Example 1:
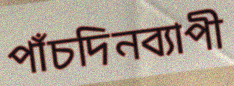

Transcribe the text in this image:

পাঁচদিনব্যাপী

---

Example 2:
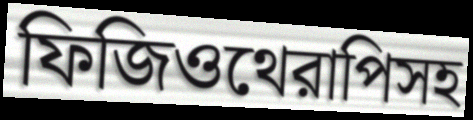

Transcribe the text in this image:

ফিজিওথেরাপিসহ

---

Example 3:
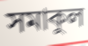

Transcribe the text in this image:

সমাকুল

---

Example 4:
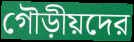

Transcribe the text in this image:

গৌড়ীয়দের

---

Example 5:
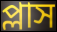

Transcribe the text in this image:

প্লাস